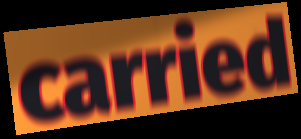
carried